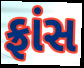
ફ્રાંસ